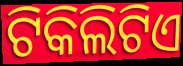
ଟିକିଲିଟିଏ